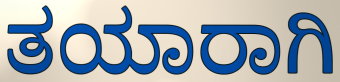
ತಯಾರಾಗಿ